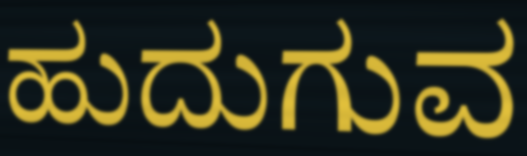
ಹುದುಗುವ